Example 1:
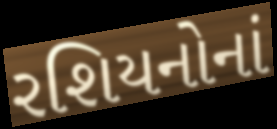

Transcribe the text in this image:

રશિયનોનાં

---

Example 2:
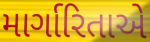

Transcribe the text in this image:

માર્ગારિતાએ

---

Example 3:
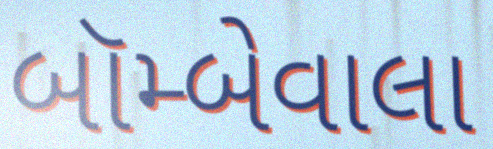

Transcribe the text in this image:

બૉમ્બેવાલા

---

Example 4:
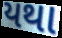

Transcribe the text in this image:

યથા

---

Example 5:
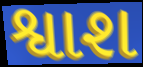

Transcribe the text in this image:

શ્વાશ